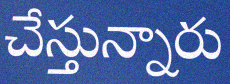
చేస్తున్నారు